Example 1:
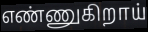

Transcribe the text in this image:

எண்ணுகிறாய்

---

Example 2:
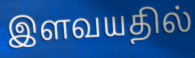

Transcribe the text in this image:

இளவயதில்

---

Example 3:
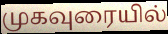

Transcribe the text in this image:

முகவுரையில்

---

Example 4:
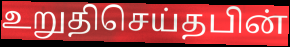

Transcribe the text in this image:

உறுதிசெய்தபின்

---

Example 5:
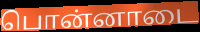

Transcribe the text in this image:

பொன்னாடை